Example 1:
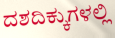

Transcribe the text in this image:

ದಶದಿಕ್ಕುಗಳಲ್ಲಿ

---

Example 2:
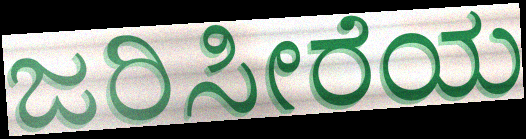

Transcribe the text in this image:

ಜರಿಸೀರೆಯ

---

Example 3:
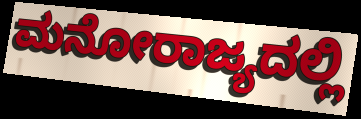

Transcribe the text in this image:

ಮನೋರಾಜ್ಯದಲ್ಲಿ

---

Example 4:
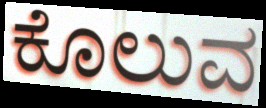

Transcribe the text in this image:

ಕೊಲುವ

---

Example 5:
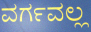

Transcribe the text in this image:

ವರ್ಗವಲ್ಲ